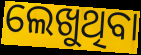
ଲେଖୁଥିବା